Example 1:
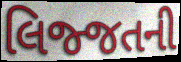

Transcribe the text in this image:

લિજ્જતની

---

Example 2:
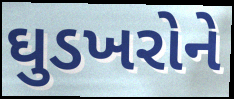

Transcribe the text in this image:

ઘુડખરોને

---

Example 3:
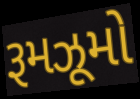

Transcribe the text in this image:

રૂમઝૂમો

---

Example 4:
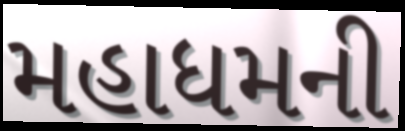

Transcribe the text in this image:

મહાધમની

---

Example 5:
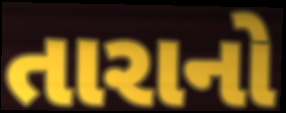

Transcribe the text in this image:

તારાનો